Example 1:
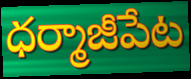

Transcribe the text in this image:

ధర్మాజీపేట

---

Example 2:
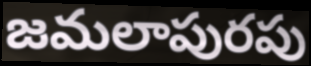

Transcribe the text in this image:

జమలాపురపు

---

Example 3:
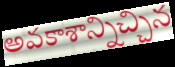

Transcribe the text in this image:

అవకాశాన్నిచ్చిన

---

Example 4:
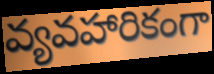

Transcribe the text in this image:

వ్యవహారికంగా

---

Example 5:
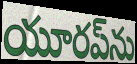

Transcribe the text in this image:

యూరప్‌ను